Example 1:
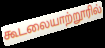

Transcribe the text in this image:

கூடலையாற்றூரில்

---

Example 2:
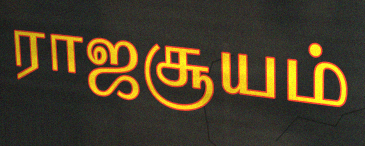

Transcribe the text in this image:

ராஜசூயம்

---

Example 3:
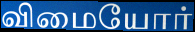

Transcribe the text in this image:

விமையோர்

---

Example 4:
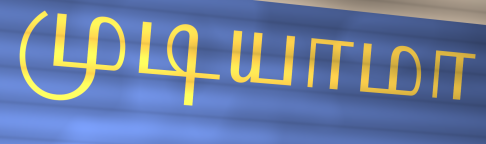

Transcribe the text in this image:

முடியாமா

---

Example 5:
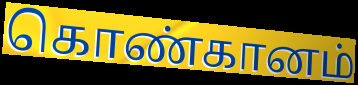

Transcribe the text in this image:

கொண்கானம்